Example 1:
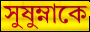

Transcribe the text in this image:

সুষুম্নাকে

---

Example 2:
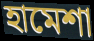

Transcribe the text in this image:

হামেশা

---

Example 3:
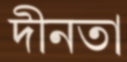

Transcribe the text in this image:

দীনতা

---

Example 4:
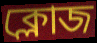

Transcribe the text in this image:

ক্লোজ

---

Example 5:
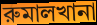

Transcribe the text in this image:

রুমালখানা